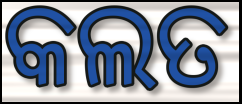
କଲତ